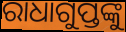
ରାଧାଗୁପ୍ତଙ୍କୁ